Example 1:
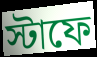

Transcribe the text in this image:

স্টাফে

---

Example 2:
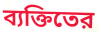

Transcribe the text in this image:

ব্যক্তিতের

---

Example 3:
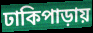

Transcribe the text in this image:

ঢাকিপাড়ায়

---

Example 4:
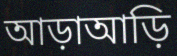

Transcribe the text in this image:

আড়াআড়ি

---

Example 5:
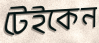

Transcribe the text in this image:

টেইকেন